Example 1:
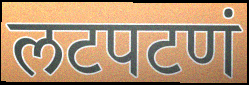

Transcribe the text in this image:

लटपटणं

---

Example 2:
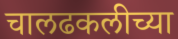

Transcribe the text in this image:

चालढकलीच्या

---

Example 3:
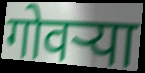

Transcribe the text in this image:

गोवर्‍या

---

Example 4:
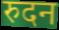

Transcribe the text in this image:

रुदन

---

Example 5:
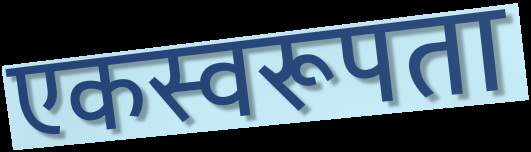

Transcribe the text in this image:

एकस्वरूपता